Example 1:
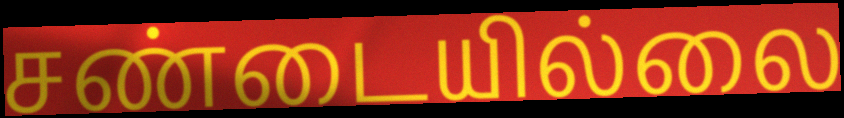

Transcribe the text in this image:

சண்டையில்லை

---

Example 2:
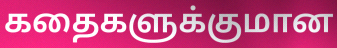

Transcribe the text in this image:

கதைகளுக்குமான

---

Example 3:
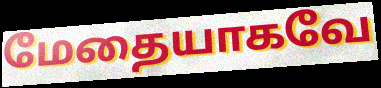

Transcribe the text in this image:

மேதையாகவே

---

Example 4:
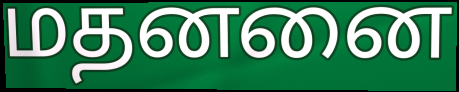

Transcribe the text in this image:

மதனனை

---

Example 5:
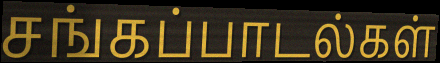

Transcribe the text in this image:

சங்கப்பாடல்கள்